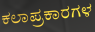
ಕಲಾಪ್ರಕಾರಗಳ